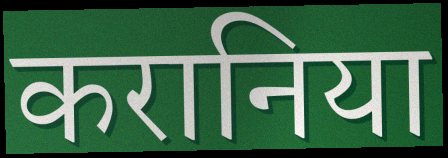
करानिया